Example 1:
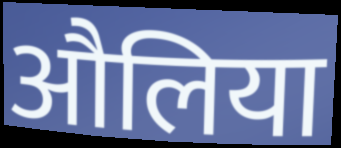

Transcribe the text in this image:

औलिया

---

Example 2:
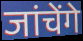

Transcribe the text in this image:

जांचेंगे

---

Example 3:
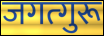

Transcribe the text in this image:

जगत्गुरू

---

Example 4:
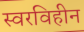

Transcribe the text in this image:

स्वरविहीन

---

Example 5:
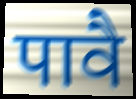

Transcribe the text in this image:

पावै